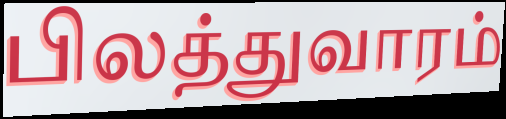
பிலத்துவாரம்